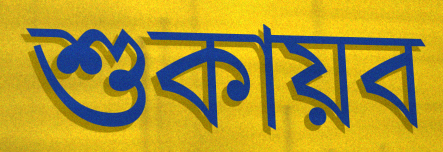
শুকায়ব